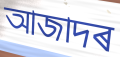
আজাদৰ